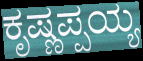
ಕೃಷ್ಣಪ್ಪಯ್ಯ